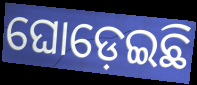
ଘୋଡ଼େଇଛି